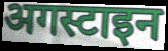
अगस्टाइन